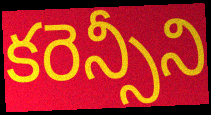
కరెన్సీని